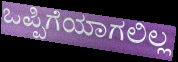
ಒಪ್ಪಿಗೆಯಾಗಲಿಲ್ಲ